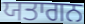
ਯਤਾਗਨ